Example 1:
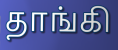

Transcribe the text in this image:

தாங்கி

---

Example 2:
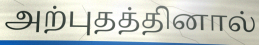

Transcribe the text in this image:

அற்புதத்தினால்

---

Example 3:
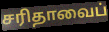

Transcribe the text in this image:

சரிதாவைப்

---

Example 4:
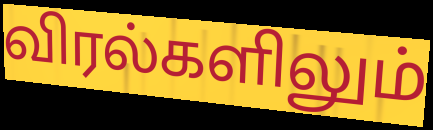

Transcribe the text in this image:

விரல்களிலும்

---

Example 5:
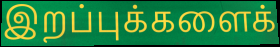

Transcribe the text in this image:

இறப்புக்களைக்